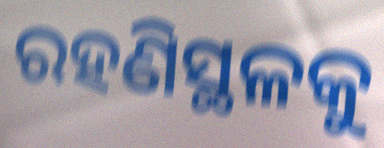
ରହଣିସ୍ଥଳକୁ